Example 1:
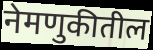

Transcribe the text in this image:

नेमणुकीतील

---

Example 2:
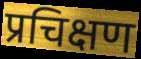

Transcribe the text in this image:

प्रचिक्षण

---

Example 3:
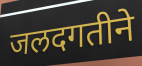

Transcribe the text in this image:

जलदगतीने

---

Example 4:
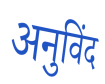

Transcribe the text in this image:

अनुविंद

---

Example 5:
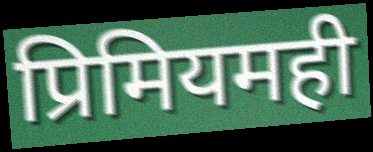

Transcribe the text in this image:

प्रिमियमही